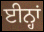
ਈਨ੍ਹਾਂ